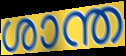
ശാന്ത